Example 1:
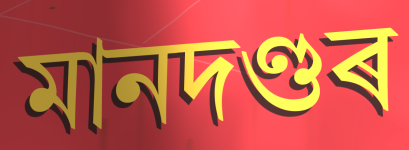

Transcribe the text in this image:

মানদণ্ডৰ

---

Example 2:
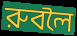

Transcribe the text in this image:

ৰুবলৈ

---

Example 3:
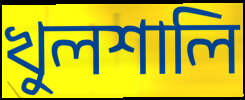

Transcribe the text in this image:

খুলশালি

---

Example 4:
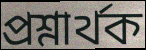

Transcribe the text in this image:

প্ৰশ্নাৰ্থক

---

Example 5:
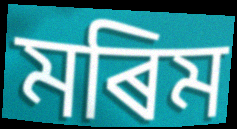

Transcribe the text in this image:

মৰিম